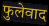
फुलेवाद